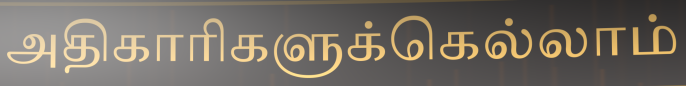
அதிகாரிகளுக்கெல்லாம்